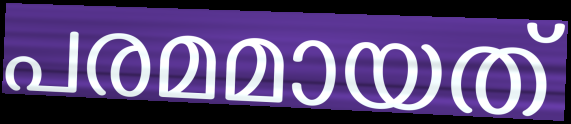
പരമമായത്